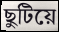
ছুটিয়ে